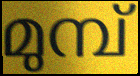
മുമ്പ്